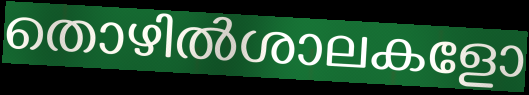
തൊഴിൽശാലകളോ